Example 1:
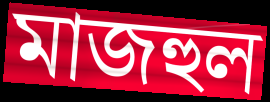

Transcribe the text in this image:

মাজহুল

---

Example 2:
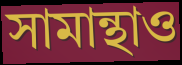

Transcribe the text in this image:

সামান্থাও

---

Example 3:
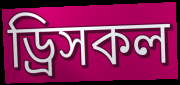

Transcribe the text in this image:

ড্রিসকল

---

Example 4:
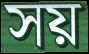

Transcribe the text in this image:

সয়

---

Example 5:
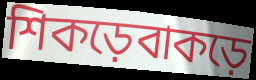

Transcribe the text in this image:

শিকড়েবাকড়ে